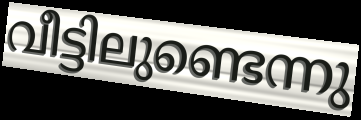
വീട്ടിലുണ്ടെന്നു